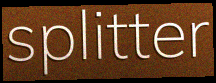
splitter